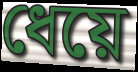
ধেয়ে